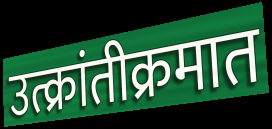
उत्क्रांतीक्रमात